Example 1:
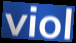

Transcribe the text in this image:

viol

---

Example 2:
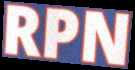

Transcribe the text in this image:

RPN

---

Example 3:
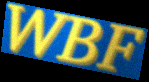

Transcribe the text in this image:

WBF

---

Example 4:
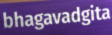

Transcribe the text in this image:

bhagavadgita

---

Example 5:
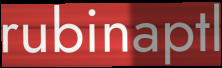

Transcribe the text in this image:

rubinaptl